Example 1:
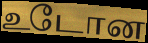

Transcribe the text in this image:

உடோன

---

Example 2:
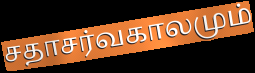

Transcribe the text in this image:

சதாசர்வகாலமும்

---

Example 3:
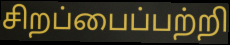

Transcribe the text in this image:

சிறப்பைப்பற்றி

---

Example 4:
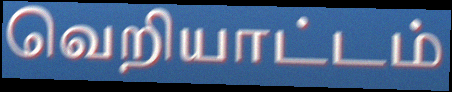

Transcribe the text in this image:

வெறியாட்டம்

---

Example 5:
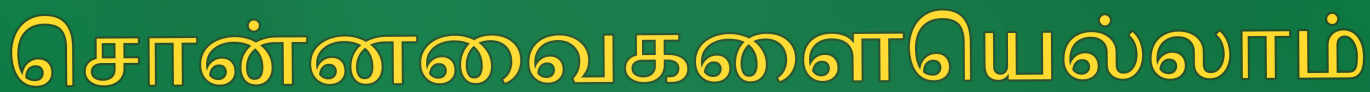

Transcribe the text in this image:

சொன்னவைகளையெல்லாம்